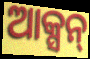
ଆକ୍ସନ୍